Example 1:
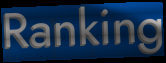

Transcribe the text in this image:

Ranking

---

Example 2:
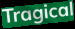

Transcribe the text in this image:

Tragical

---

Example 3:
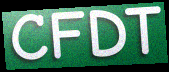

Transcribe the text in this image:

CFDT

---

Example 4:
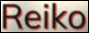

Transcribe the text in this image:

Reiko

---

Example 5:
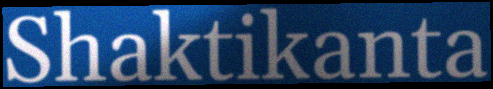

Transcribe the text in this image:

Shaktikanta